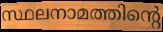
സ്ഥലനാമത്തിന്റെ